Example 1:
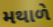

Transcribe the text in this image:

મથાળે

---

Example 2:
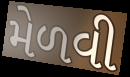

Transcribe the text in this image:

મેળવી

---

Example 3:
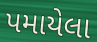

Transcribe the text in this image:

પમાયેલા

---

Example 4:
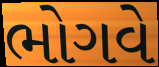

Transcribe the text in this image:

ભોગવે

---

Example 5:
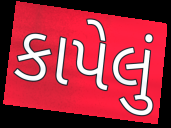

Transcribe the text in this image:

કાપેલું